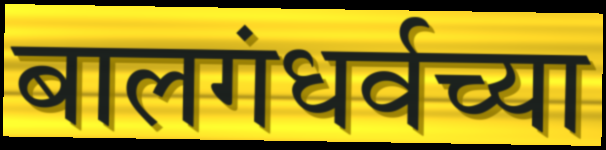
बालगंधर्वच्या